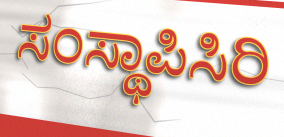
ಸಂಸ್ಥಾಪಿಸಿರಿ